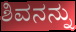
ಶಿವನನ್ನು